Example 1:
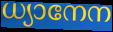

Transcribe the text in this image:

ധ്യാനേന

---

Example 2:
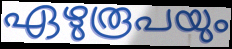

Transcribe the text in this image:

ഏഴുരൂപയും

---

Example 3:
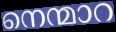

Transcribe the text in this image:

നെന്മാറ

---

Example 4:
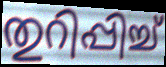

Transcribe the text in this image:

തുറിപ്പിച്ച്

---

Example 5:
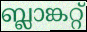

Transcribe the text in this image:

ബ്ലാങ്കറ്റ്